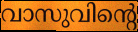
വാസുവിന്റെ